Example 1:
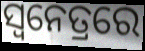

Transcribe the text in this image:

ସ୍ୱନେତ୍ରରେ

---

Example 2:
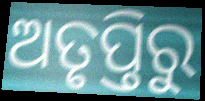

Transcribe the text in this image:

ଅତୃପ୍ତିରୁ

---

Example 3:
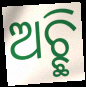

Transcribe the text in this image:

ଅଚ୍ଛି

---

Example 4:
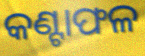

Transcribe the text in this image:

କଣ୍ଟାଫଳ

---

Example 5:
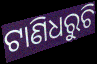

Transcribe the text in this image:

ଟାଣିଧରୁଚି